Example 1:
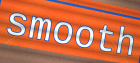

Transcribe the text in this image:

smooth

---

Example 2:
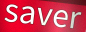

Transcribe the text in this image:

saver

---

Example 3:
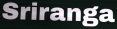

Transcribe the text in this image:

Sriranga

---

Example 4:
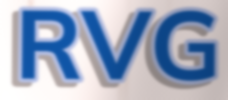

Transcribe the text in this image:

RVG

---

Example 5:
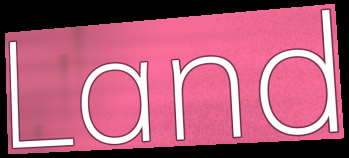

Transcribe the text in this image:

Land